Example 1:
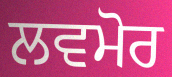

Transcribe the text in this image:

ਲਵਮੋਰ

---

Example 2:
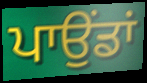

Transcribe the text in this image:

ਪਾਉਂਡਾਂ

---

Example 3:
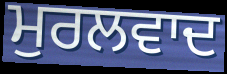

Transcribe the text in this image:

ਮੁਰਲਵਾਦ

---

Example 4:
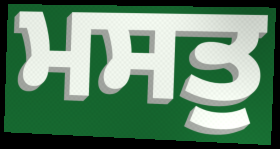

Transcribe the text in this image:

ਮਸਤੁ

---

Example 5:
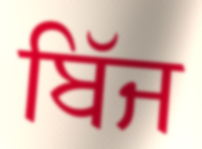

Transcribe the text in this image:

ਬਿੱਜ